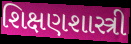
શિક્ષણશાસ્ત્રી